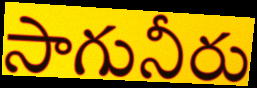
సాగునీరు